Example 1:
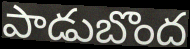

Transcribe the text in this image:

పాడుబొంద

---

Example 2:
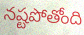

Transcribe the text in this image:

నష్టపోతోంది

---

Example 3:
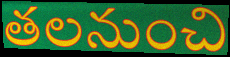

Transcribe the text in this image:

తలనుంచి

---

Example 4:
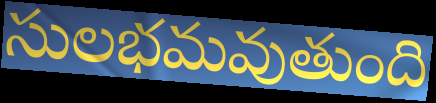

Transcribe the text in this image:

సులభమవుతుంది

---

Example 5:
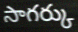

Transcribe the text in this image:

సాగర్కు